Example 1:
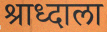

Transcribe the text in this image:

श्राध्दाला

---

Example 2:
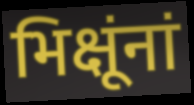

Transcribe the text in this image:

भिक्षूंनां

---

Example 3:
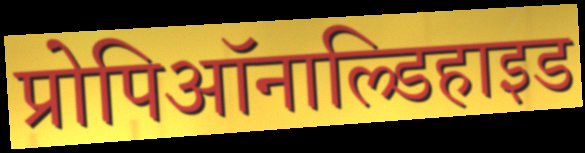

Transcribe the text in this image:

प्रोपिऑनाल्डिहाइड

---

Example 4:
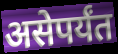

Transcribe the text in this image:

असेपर्यंत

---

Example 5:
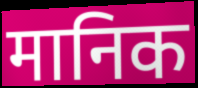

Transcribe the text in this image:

मानिक